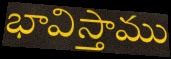
భావిస్తాము